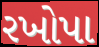
રખોપા